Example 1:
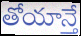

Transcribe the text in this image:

తోయాన్తే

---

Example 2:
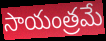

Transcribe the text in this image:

సాయంత్రమే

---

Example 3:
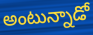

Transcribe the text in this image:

అంటున్నాడో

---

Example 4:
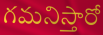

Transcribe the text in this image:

గమనిస్తారో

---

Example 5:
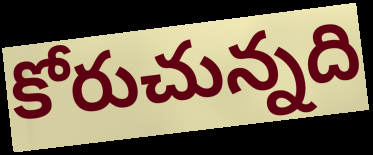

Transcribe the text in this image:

కోరుచున్నది